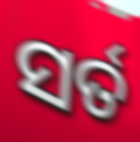
ସର୍ତ